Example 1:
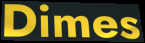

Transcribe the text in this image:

Dimes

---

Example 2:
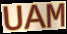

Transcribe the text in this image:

UAM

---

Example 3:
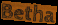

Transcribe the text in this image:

Betha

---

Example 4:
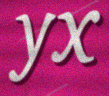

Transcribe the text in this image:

yx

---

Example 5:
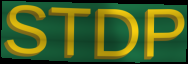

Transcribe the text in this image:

STDP